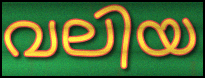
വലിയ